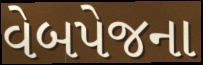
વેબપેજના